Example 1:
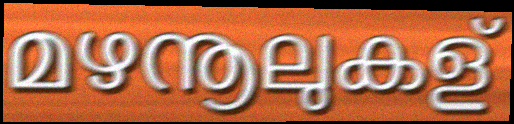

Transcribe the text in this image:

മഴനൂലുകള്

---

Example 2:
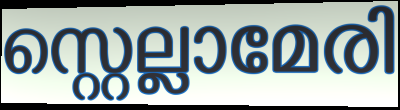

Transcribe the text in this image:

സ്റ്റെല്ലാമേരി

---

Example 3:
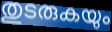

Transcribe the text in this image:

തുടരുകയും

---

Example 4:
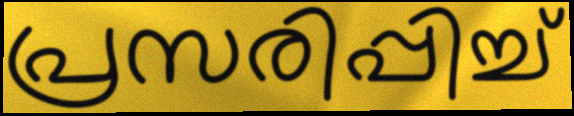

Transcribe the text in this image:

പ്രസരിപ്പിച്ച്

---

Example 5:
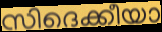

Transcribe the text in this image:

സിദെക്കീയാ